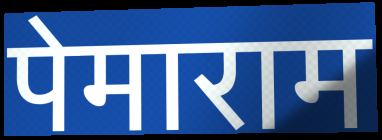
पेमाराम